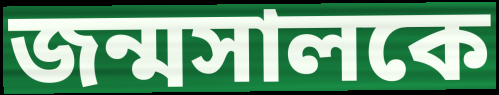
জন্মসালকে